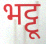
भट्टू